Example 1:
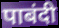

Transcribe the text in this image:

पाबंदी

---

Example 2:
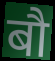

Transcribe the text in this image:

बौ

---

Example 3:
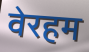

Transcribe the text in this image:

वेरहम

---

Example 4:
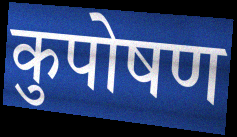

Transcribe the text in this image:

कुपोषण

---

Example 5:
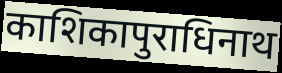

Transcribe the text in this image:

काशिकापुराधिनाथ